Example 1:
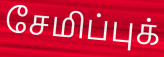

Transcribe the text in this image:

சேமிப்புக்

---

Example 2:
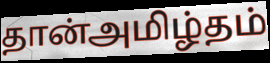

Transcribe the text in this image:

தான்அமிழ்தம்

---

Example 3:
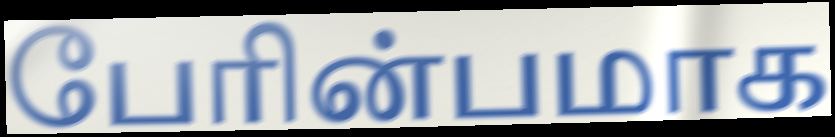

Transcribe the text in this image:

பேரின்பமாக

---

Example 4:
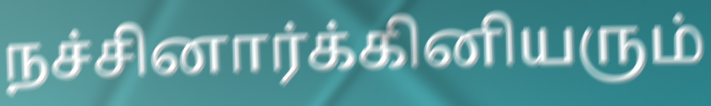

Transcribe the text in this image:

நச்சினார்க்கினியரும்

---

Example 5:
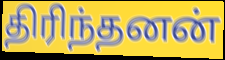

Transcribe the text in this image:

திரிந்தனன்